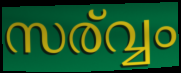
സര്വ്വം